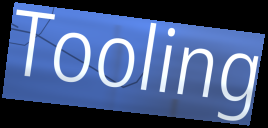
Tooling